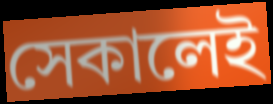
সেকালেই